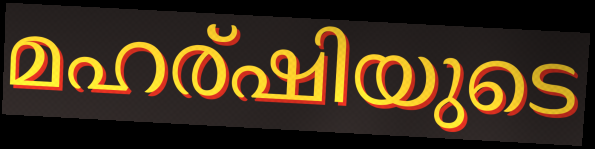
മഹര്ഷിയുടെ